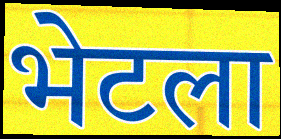
भेटला